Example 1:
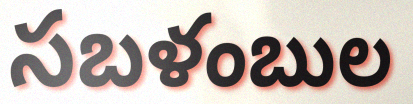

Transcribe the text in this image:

సబళంబుల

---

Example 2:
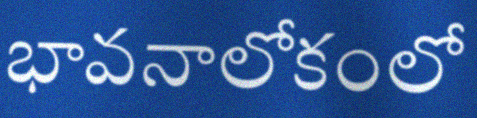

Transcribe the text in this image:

భావనాలోకంలో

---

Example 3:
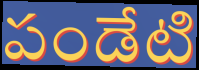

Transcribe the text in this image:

పండేటి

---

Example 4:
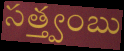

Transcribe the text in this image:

సత్త్వంబు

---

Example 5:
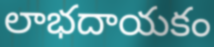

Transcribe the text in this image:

లాభదాయకం